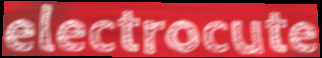
electrocute